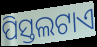
ପିସ୍ତଲଟାଏ